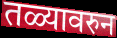
तळ्यावरुन